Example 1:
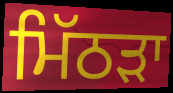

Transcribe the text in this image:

ਮਿੱਠੜਾ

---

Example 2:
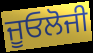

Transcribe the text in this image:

ਜੂਓਲੋਜੀ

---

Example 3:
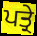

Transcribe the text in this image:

ਪਤ੍ਰੇ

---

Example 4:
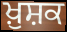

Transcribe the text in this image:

ਖ਼ੁਸ਼ਕ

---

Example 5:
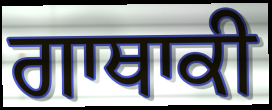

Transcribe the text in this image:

ਗਾਥਾਕੀ